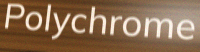
Polychrome